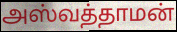
அஸ்வத்தாமன்